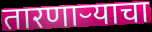
तारणाऱ्याचा